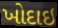
ખોદાઇ